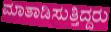
ಮಾತಾಡಿಸುತ್ತಿದ್ದರು